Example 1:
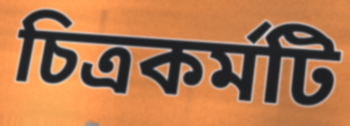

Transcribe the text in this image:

চিত্রকর্মটি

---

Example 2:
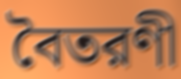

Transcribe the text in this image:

বৈতরণী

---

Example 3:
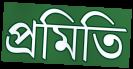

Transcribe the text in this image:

প্রমিতি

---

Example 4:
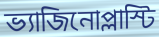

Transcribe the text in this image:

ভ্যাজিনোপ্লাস্টি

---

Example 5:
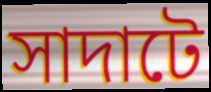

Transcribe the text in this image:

সাদাটে